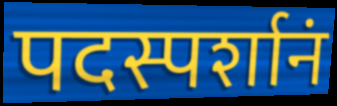
पदस्पर्शानं